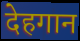
देहगान